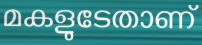
മകളുടേതാണ്